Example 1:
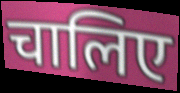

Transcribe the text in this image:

चालिए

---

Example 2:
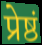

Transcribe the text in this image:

प्रेष्ठं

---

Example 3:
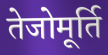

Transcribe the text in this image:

तेजोमूर्ति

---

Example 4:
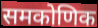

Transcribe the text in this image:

समकोणिक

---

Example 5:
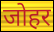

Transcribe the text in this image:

जोहर